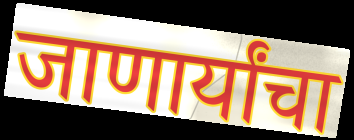
जाणार्यांचा